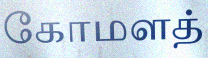
கோமளத்